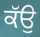
ਕੱਉ